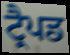
ਟ੍ਰੈਪਡ